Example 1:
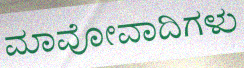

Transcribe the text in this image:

ಮಾವೋವಾದಿಗಳು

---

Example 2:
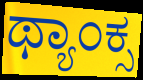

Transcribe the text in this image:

ಥ್ಯಾಂಕ್ಸ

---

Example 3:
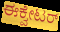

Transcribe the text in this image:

ಈಕ್ವೇಟರ್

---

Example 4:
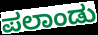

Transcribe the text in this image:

ಪಲಾಂಡು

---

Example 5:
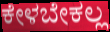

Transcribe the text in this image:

ಕೇಳಬೇಕಲ್ಲ